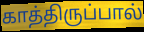
காத்திருப்பால்